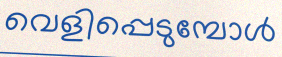
വെളിപ്പെടുമ്പോൾ